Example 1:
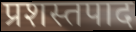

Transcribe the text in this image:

प्रशस्तपाद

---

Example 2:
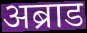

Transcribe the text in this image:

अब्राड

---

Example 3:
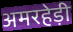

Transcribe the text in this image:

अमरहेड़ी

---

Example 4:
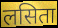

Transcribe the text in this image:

लसिता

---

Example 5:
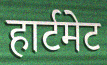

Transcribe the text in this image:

हार्टमेट